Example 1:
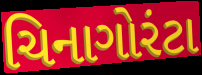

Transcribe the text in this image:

ચિનાગોરંટા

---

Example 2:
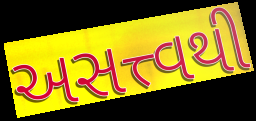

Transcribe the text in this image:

અસત્ત્વથી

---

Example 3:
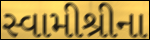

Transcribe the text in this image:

સ્વામીશ્રીના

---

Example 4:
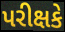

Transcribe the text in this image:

પરીક્ષકે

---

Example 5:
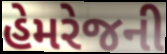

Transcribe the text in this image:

હેમરેજની